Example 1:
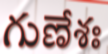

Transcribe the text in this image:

గుణేశః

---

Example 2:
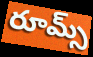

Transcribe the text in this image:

రూమ్స్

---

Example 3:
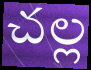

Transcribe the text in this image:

చల్ల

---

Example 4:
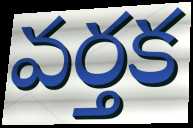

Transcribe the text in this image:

వర్తక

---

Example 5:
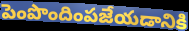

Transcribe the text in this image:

పెంపొందింపజేయడానికి